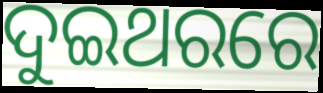
ଦୁଇଥରରେ